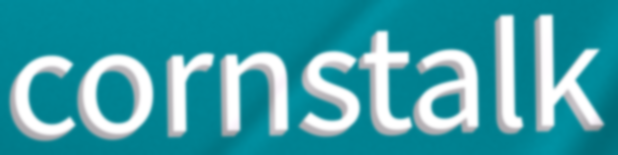
cornstalk